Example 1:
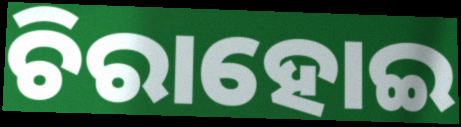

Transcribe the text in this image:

ଚିରାହୋଇ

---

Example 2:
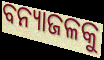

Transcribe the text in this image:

ବନ୍ୟାଜଳକୁ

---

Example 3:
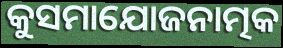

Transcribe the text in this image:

କୁସମାଯୋଜନାତ୍ମକ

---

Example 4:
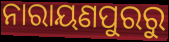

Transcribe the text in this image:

ନାରାୟଣପୁରରୁ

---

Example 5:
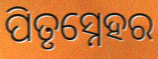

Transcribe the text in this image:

ପିତୃସ୍ନେହର